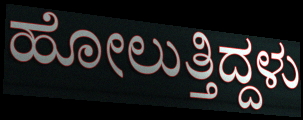
ಹೋಲುತ್ತಿದ್ದಳು